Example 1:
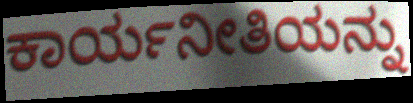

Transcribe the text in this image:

ಕಾರ್ಯನೀತಿಯನ್ನು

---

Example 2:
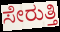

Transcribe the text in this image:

ಸೇರುತ್ತಿ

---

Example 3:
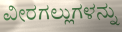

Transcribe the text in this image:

ವೀರಗಲ್ಲುಗಳನ್ನು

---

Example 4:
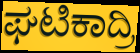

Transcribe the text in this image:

ಘಟಿಕಾದ್ರಿ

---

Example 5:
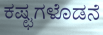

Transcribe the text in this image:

ಕಷ್ಟಗಳೊಡನೆ